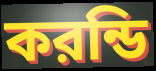
করন্ডি